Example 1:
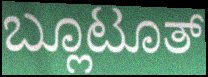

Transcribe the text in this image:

ಬ್ಲೂಟೂತ್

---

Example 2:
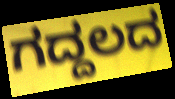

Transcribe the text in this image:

ಗದ್ದಲದ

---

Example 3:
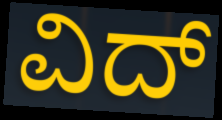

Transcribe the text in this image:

ವಿದ್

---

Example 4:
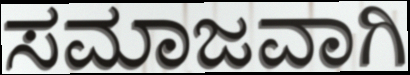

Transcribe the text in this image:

ಸಮಾಜವಾಗಿ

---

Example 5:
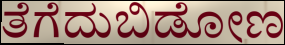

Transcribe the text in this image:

ತೆಗೆದುಬಿಡೋಣ